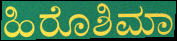
ಹಿರೊಶಿಮಾ